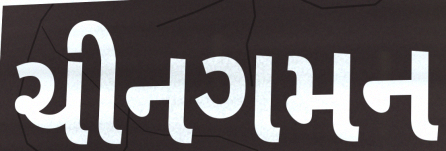
ચીનગમન